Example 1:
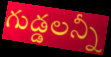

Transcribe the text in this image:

గుడ్డలన్నీ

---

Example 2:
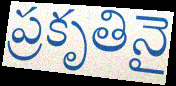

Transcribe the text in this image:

ప్రకృతినై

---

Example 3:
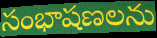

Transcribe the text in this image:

సంభాషణలను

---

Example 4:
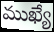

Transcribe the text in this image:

ముఖ్యే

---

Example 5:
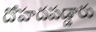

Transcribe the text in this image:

దోహదపడ్డారు